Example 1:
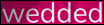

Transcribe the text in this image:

wedded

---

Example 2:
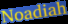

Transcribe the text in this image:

Noadiah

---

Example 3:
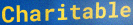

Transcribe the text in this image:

Charitable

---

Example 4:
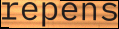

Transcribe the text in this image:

repens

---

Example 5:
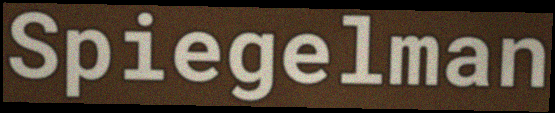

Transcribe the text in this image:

Spiegelman